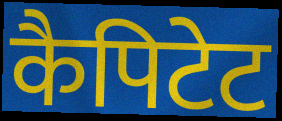
कैपिटेट